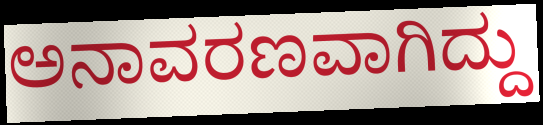
ಅನಾವರಣವಾಗಿದ್ದು